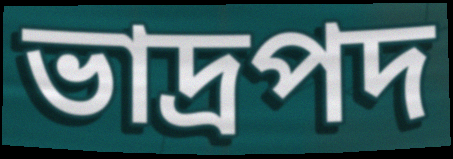
ভাদ্রপদ